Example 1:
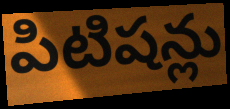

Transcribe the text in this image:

పిటిషన్లు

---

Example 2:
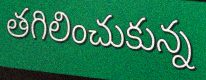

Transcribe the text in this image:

తగిలించుకున్న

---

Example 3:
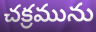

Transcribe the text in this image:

చక్రమును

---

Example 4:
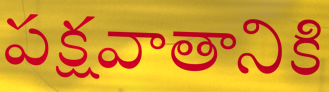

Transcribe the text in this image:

పక్షవాతానికి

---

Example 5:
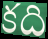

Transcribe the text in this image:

కది